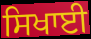
ਸਿਖਾਈ